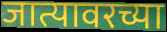
जात्यावरच्या